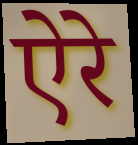
ऐरे